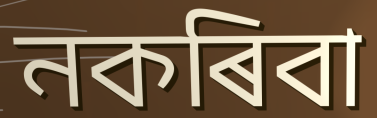
নকৰিবা